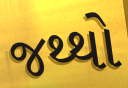
જથ્થો